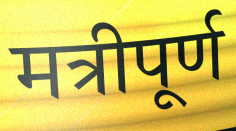
मत्रीपूर्ण